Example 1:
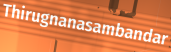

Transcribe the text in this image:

Thirugnanasambandar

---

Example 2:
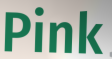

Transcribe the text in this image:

Pink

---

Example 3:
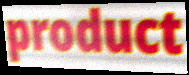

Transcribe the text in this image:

product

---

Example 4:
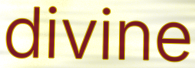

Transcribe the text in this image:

divine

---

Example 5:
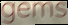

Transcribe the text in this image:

gems